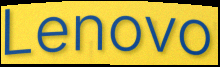
Lenovo